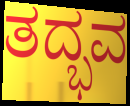
ತದ್ಭವ